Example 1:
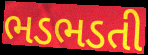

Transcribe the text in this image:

ભડભડતી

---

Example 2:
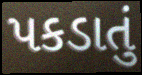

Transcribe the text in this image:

પકડાતું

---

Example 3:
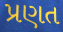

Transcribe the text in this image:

પ્રણત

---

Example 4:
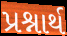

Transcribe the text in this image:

પ્રશ્નાર્થ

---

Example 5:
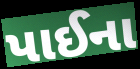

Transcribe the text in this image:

પાઈના